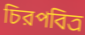
চিরপবিত্র